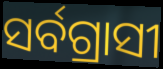
ସର୍ବଗ୍ରାସୀ